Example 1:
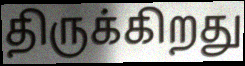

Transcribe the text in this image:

திருக்கிறது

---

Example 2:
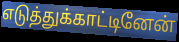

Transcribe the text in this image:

எடுத்துக்காட்டினேன்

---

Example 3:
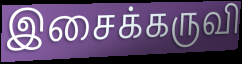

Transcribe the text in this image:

இசைக்கருவி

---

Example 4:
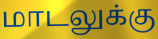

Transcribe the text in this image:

மாடலுக்கு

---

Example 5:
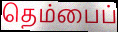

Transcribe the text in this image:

தெம்பைப்